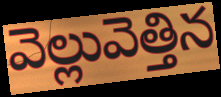
వెల్లువెత్తిన